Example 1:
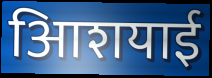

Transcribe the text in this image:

आिशयाई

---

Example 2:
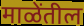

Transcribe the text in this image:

माळेंतील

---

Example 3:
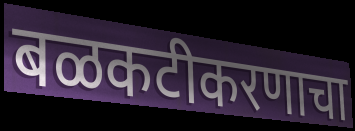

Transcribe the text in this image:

बळकटीकरणाचा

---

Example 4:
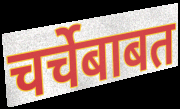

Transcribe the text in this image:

चर्चेबाबत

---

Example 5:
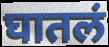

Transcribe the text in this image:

घातलं